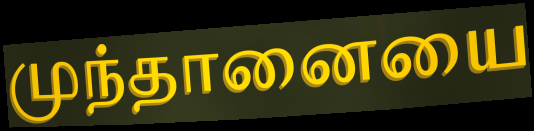
முந்தானையை